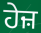
ਹੇਜ਼